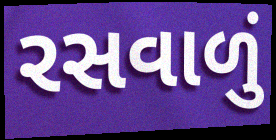
રસવાળું